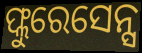
ଫ୍ଲୁରେସେନ୍ସ